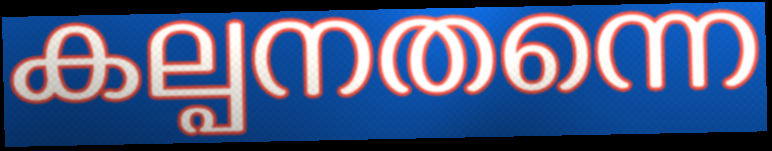
കല്പനതന്നെ